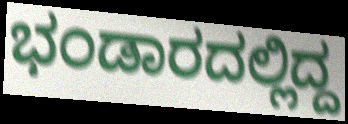
ಭಂಡಾರದಲ್ಲಿದ್ದ